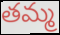
తమ్మ